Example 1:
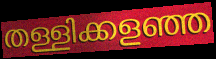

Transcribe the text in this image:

തള്ളിക്കളഞ്ഞ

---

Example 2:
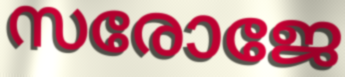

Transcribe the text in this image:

സരോജേ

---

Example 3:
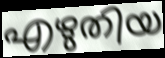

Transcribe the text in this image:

എഴുതിയ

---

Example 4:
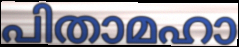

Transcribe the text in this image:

പിതാമഹാ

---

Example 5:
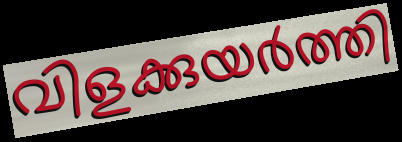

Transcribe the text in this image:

വിളക്കുയർത്തി